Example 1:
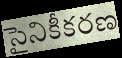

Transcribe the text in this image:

సైనికీకరణ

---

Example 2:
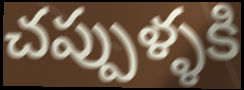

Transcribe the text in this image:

చప్పుళ్ళకి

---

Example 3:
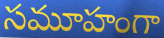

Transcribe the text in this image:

సమూహంగా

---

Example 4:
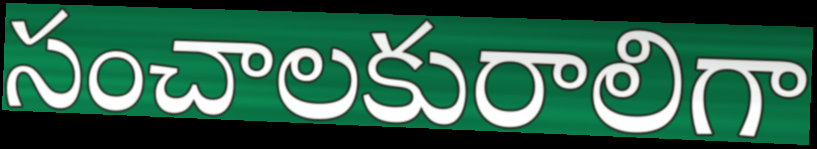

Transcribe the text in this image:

సంచాలకురాలిగా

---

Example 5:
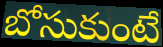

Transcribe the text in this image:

బోసుకుంటే